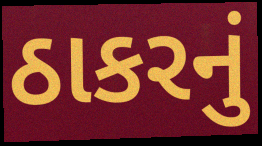
ઠાકરનું